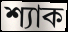
শ্যাক